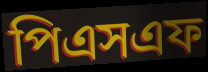
পিএসএফ